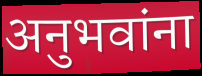
अनुभवांना